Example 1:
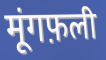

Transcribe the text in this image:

मूंगफ़ली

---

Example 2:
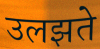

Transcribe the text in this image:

उलझते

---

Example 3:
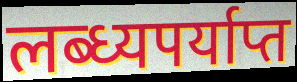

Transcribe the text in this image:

लब्ध्यपर्याप्त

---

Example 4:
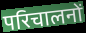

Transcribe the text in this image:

परिचालनों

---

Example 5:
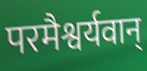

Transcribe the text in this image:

परमैश्वर्यवान्